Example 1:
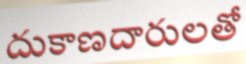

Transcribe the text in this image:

దుకాణదారులతో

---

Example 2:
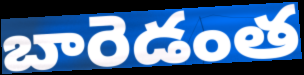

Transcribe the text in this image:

బారెడంత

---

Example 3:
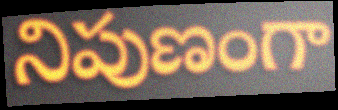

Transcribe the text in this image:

నిపుణంగా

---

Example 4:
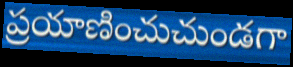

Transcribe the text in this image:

ప్రయాణించుచుండగా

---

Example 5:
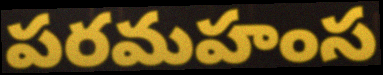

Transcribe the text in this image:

పరమహంస